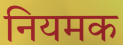
नियमक